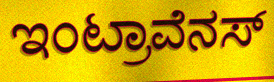
ಇಂಟ್ರಾವೆನಸ್